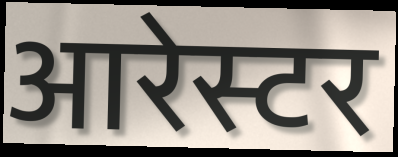
आरेस्टर